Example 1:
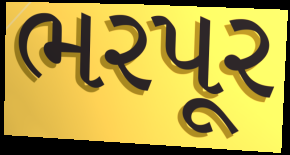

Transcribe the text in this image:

ભરપૂર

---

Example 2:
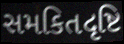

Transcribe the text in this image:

સમકિતદૃષ્ટિ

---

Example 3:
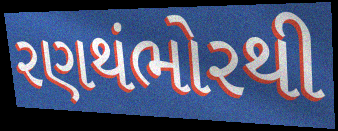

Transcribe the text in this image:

રણથંભોરથી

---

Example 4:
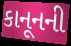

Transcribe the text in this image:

કાનૂનની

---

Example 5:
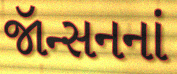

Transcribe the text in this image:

જૉન્સનનાં